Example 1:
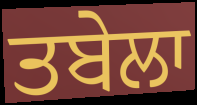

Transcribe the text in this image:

ਤਬੇਲਾ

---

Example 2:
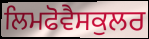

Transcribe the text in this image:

ਲਿਮਫੋਵੈਸਕੁਲਰ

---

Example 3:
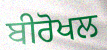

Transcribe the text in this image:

ਬੀਰੋਖਲ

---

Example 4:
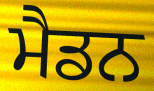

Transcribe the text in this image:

ਮੈਡਨ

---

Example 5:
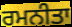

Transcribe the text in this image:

ਰਮਨੀਤਾ